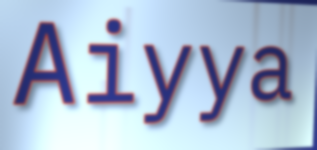
Aiyya